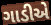
ગાડીએ